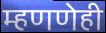
म्हणणेही